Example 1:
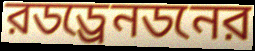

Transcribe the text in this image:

রডড্রেনডনের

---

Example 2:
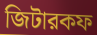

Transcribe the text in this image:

জিটারকফ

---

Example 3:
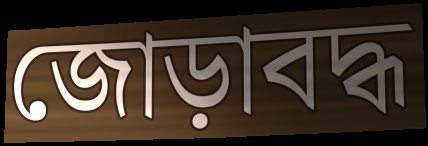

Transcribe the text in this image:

জোড়াবদ্ধ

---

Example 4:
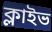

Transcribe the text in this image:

ক্লাইভ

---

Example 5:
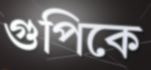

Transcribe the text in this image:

গুপিকে